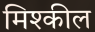
मिश्कील